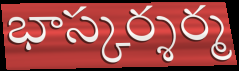
భాస్కర్శర్మ